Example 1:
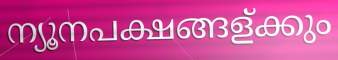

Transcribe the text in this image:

ന്യൂനപക്ഷങ്ങള്ക്കും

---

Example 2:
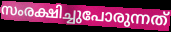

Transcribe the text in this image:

സംരക്ഷിച്ചുപോരുന്നത്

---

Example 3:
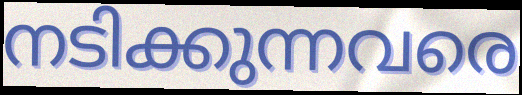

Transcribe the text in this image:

നടിക്കുന്നവരെ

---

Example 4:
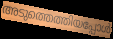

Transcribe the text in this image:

അടുത്തെത്തിയപ്പോൾ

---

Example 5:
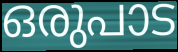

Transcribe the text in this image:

ഒരുപാട